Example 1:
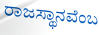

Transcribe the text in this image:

ರಾಜಸ್ಥಾನವೆಂಬ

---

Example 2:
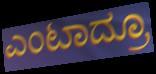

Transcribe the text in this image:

ಎಂಟಾದ್ರೂ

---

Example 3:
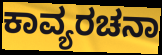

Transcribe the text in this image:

ಕಾವ್ಯರಚನಾ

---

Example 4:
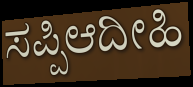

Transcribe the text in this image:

ಸಪ್ಪಿಆದೀಹಿ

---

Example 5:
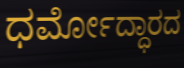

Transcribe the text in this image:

ಧರ್ಮೋದ್ಧಾರದ